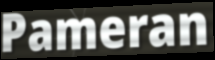
Pameran